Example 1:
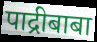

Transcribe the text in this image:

पाद्रीबाबा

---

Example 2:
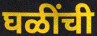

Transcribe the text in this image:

घळींची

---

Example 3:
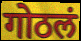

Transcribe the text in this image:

गोठलं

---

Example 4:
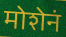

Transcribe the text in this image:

मोशेनं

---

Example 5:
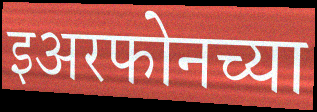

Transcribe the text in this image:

इअरफोनच्या